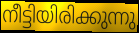
നീട്ടിയിരിക്കുന്നു